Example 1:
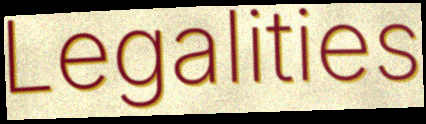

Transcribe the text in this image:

Legalities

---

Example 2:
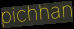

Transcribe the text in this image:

pichhan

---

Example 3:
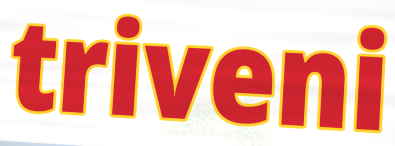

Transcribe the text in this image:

triveni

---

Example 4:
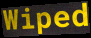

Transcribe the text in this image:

Wiped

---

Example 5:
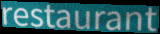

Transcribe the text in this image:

restaurant